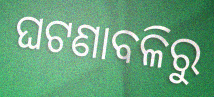
ଘଟଣାବଳିରୁ